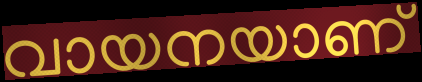
വായനയാണ്